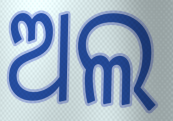
ଅଲ